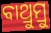
ବାଥ୍ରୁମ୍ରୁ